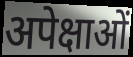
अपेक्षाओं